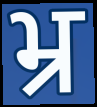
भ्र